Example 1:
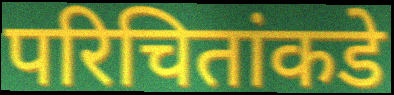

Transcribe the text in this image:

परिचितांकडे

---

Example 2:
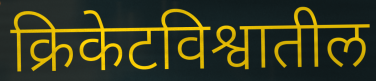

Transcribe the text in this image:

क्रिकेटविश्वातील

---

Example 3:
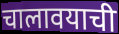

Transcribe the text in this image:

चालावयाची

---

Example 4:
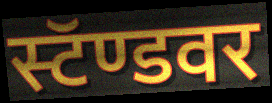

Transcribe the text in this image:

स्टॅण्डवर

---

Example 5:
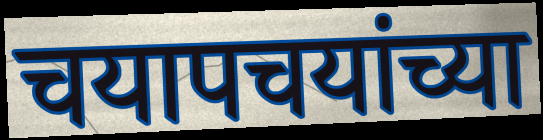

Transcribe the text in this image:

चयापचयांच्या